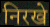
निरखे